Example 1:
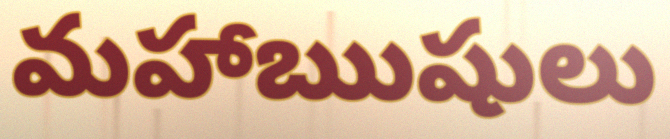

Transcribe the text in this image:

మహాఋషులు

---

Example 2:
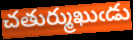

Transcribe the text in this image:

చతుర్ముఖుఁడు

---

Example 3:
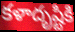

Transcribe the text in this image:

కళాదృష్టికి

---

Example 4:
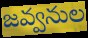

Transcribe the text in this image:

జవ్వనుల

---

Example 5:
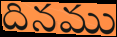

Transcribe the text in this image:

దినము